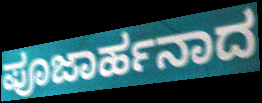
ಪೂಜಾರ್ಹನಾದ